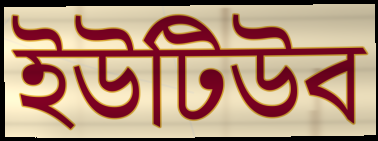
ইউটিউব